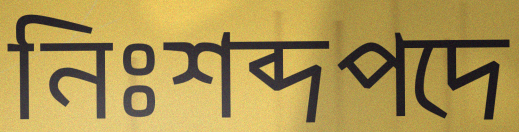
নিঃশব্দপদে